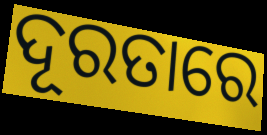
ଦୂରତାରେ